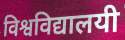
विश्वविद्यालयी